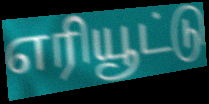
எரியூட்டு